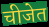
चीजेत